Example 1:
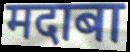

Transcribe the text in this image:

मदाबा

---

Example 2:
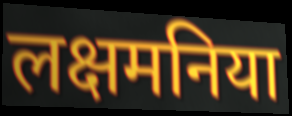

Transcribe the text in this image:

लक्षमनिया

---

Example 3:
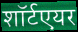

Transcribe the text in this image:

शॉर्टएयर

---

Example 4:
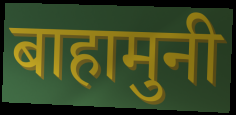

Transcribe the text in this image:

बाहामुनी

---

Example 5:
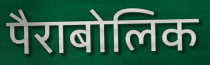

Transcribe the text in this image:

पैराबोलिक